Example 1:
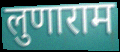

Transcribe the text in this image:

लुणाराम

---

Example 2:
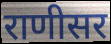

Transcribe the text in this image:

राणीसर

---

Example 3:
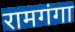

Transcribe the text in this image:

रामगंगा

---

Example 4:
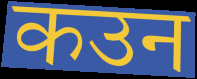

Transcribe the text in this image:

कउन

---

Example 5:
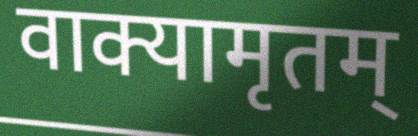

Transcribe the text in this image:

वाक्यामृतम्